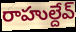
రాహుల్దేవ్